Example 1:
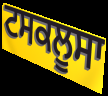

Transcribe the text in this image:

ਟਸਕਲੂਸਾ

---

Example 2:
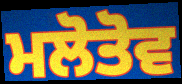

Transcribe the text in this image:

ਮਲੋਤੋਵ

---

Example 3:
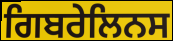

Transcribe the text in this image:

ਗਿਬਰੇਲਿਨਸ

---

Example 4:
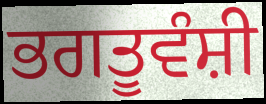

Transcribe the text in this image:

ਭਗਤੂਵੰਸ਼ੀ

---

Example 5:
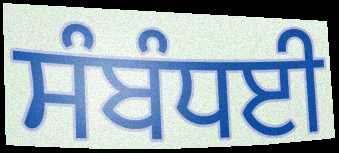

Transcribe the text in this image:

ਸੰਬੰਧਈ